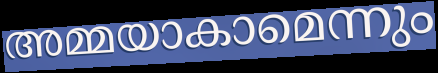
അമ്മയാകാമെന്നും